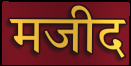
मजीद